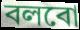
বলবো